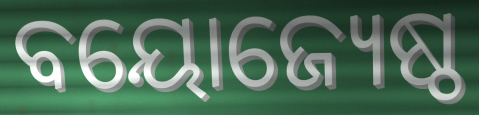
ବୟୋଜ୍ୟେଷ୍ଠ